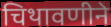
चिथावणीने